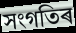
সংগতিৰ